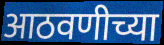
आठवणीच्या